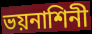
ভয়নাশিনী